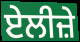
ਏਲੀਜ਼ੇ